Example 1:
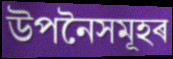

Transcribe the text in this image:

উপনৈসমূহৰ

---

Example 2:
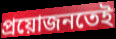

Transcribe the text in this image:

প্ৰয়োজনতেই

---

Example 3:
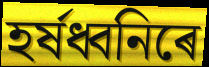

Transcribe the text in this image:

হৰ্ষধ্বনিৰে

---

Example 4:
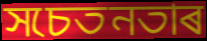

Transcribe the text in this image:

সচেতনতাৰ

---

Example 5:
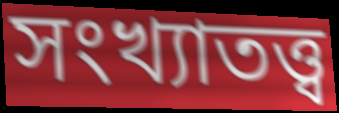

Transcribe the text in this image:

সংখ্যাতত্ত্ব